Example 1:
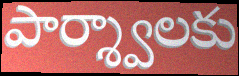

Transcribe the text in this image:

పార్శ్వాలకు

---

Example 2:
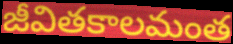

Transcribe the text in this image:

జీవితకాలమంత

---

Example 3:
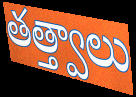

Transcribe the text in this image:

తత్త్వాలు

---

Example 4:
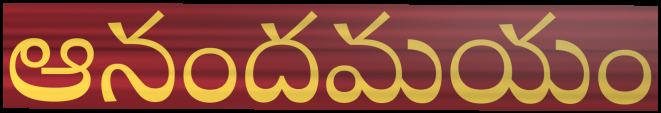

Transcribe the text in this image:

ఆనందమయం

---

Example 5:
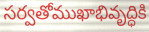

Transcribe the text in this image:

సర్వతోముఖాభివృద్ధికి